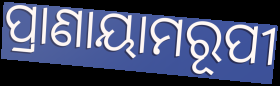
ପ୍ରାଣାୟାମରୂପୀ